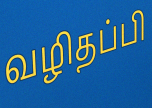
வழிதப்பி